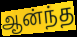
ஆன்ந்த